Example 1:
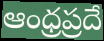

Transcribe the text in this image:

ఆంధ్రప్రదే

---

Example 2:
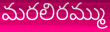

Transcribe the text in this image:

మరలిరమ్ము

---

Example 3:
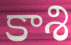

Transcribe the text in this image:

కాశి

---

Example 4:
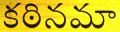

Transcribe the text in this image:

కఠినమా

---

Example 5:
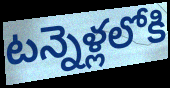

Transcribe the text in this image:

టన్నెళ్లలోకి